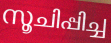
സൂചിപ്പിച്ച